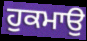
ਹੁਕਮਾਉ